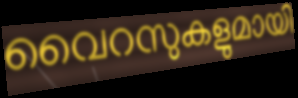
വൈറസുകളുമായി